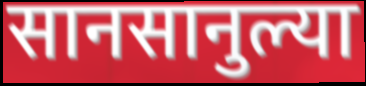
सानसानुल्या